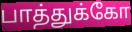
பாத்துக்கோ